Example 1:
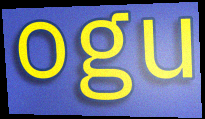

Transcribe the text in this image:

ogu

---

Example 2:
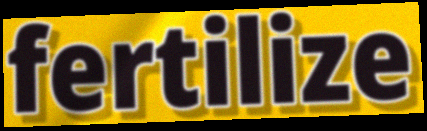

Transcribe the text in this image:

fertilize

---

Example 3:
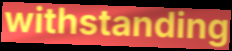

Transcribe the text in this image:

withstanding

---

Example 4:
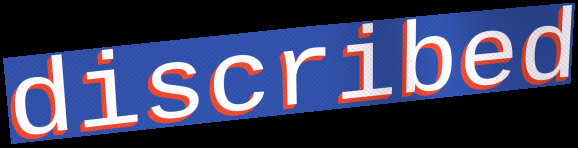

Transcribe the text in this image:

discribed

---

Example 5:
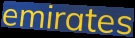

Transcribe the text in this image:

emirates